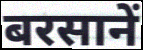
बरसानें